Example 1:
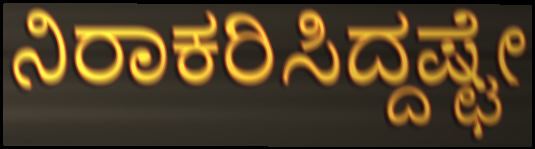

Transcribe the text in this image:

ನಿರಾಕರಿಸಿದ್ದಷ್ಟೇ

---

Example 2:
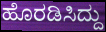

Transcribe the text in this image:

ಹೊರಡಿಸಿದ್ದು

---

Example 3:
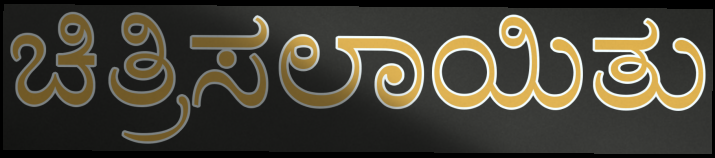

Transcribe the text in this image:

ಚಿತ್ರಿಸಲಾಯಿತು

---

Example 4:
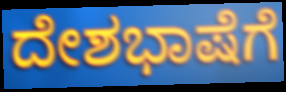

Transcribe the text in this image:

ದೇಶಭಾಷೆಗೆ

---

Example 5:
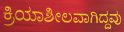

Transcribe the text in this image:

ಕ್ರಿಯಾಶೀಲವಾಗಿದ್ದವು